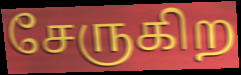
சேருகிற